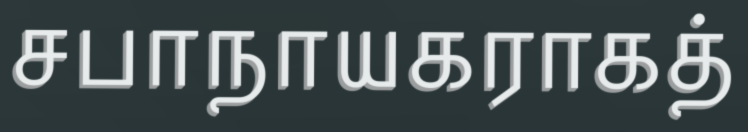
சபாநாயகராகத்